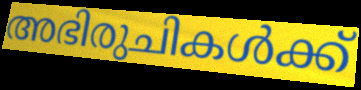
അഭിരുചികൾക്ക്